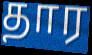
தார